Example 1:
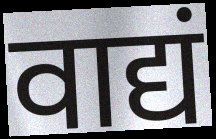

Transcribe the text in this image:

वाद्यं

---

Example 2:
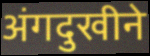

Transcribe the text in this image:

अंगदुखीने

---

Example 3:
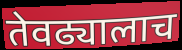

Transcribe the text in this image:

तेवढ्यालाच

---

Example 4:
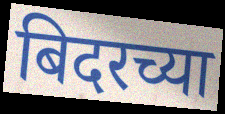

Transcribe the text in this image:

बिदरच्या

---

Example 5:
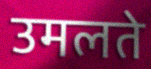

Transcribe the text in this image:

उमलते